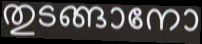
തുടങ്ങാനോ